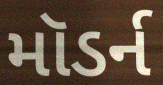
મૉડર્ન